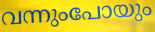
വന്നുംപോയും